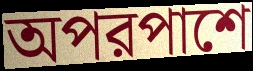
অপরপাশে